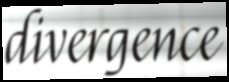
divergence